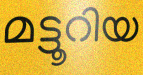
മട്ടൂറിയ